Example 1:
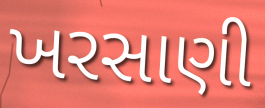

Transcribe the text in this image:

ખરસાણી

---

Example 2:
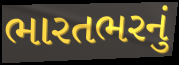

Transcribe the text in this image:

ભારતભરનું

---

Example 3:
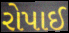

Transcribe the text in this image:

રોપાઈ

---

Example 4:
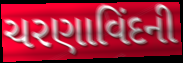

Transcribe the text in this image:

ચરણાવિંદની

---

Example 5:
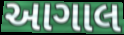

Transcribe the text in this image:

આગાલ